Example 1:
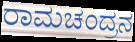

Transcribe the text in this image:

ರಾಮಚಂದ್ರನ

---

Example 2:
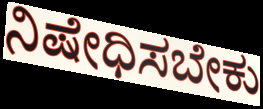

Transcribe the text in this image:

ನಿಷೇಧಿಸಬೇಕು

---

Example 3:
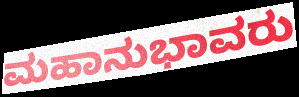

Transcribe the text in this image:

ಮಹಾನುಭಾವರು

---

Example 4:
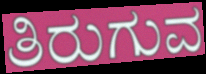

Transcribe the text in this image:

ತಿರುಗುವ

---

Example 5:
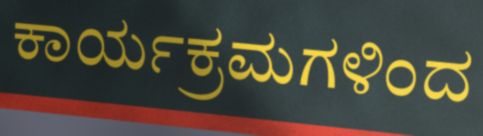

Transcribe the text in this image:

ಕಾರ್ಯಕ್ರಮಗಳಿಂದ